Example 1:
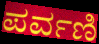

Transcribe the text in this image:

ಪರ್ವಣಿ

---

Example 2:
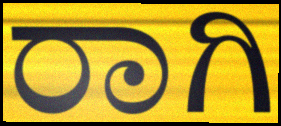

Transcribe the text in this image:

ರಾಗಿ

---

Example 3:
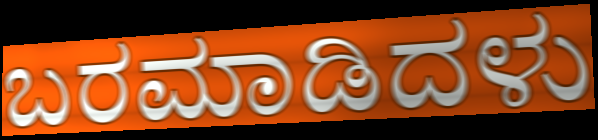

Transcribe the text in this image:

ಬರಮಾಡಿದಳು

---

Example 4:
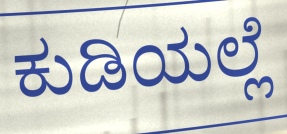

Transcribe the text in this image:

ಕುಡಿಯಲ್ಲೆ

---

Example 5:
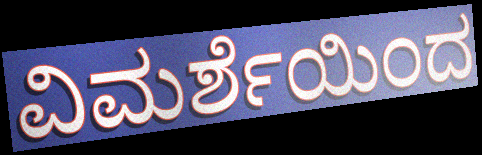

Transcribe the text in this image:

ವಿಮರ್ಶೆಯಿಂದ